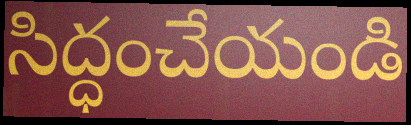
సిద్ధంచేయండి